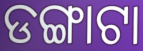
ଡଙ୍ଗାଟା